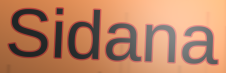
Sidana